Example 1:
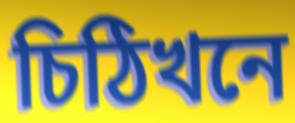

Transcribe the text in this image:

চিঠিখনে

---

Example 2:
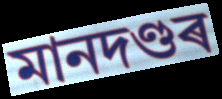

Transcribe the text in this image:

মানদণ্ডৰ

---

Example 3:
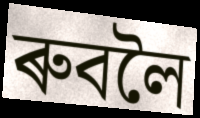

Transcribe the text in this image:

ৰুবলৈ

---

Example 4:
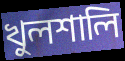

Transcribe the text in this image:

খুলশালি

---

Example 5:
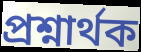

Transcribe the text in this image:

প্ৰশ্নাৰ্থক